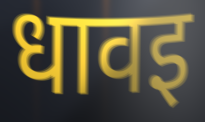
धावइ